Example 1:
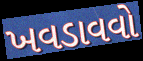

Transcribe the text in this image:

ખવડાવવો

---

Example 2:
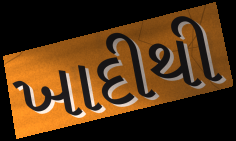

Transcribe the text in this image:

ખાદીથી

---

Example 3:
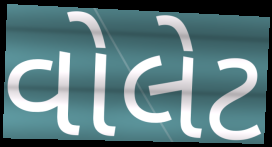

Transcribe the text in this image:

વોલેટ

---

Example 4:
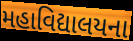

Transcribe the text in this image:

મહાવિદ્યાલયના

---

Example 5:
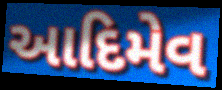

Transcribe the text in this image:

આદિમેવ